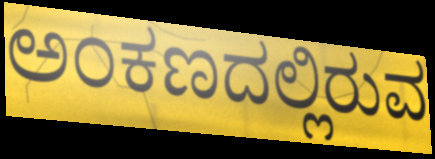
ಅಂಕಣದಲ್ಲಿರುವ